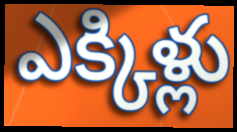
ఎక్కిళ్లు